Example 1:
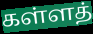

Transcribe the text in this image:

கள்ளத்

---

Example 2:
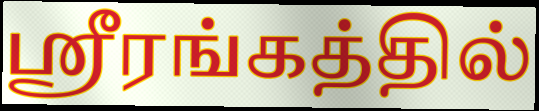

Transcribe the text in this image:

ஸ்ரீரங்கத்தில்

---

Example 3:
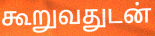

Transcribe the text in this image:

கூறுவதுடன்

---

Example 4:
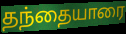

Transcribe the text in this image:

தந்தையாரை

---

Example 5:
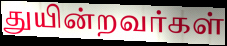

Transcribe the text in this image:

துயின்றவர்கள்